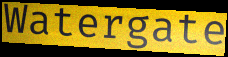
Watergate